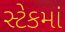
સ્ટેકમાં